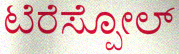
ಟೆರೆಸ್ಪೋಲ್